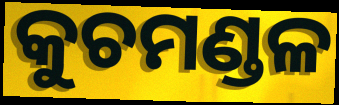
କୁଚମଣ୍ଡଳ